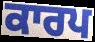
ਕਾਰਪ